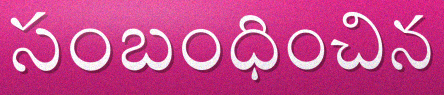
సంబంధించిన